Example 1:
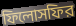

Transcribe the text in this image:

ফিলোসফির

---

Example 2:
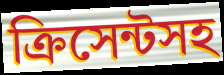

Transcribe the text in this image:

ক্রিসেন্টসহ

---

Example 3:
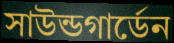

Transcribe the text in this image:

সাউন্ডগার্ডেন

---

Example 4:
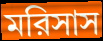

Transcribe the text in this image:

মরিসাস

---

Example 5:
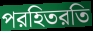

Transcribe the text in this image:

পরহিতরতি